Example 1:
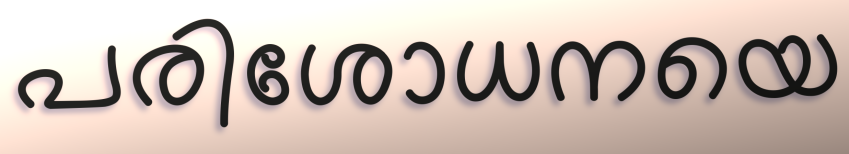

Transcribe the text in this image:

പരിശോധനയെ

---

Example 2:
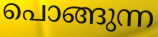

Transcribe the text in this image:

പൊങ്ങുന്ന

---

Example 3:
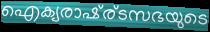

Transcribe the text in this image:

ഐക്യരാഷ്ര്ടസഭയുടെ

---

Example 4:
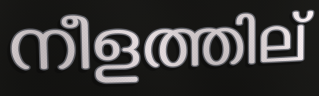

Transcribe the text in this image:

നീളത്തില്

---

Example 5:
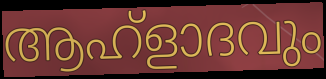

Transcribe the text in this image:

ആഹ്ളാദവും